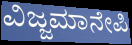
ವಿಜ್ಜಮಾನೇಪಿ